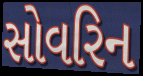
સોવરિન